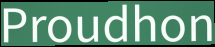
Proudhon